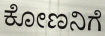
ಕೋಣನಿಗೆ